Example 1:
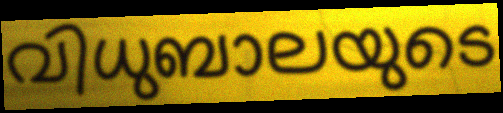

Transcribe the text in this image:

വിധുബാലയുടെ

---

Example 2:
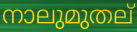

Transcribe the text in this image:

നാലുമുതല്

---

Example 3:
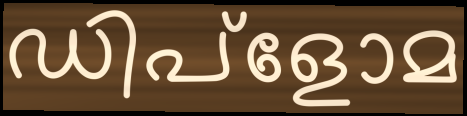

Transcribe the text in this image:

ഡിപ്ളോമ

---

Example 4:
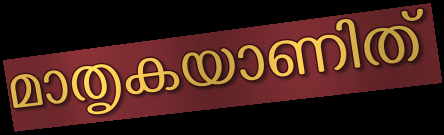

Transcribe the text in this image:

മാതൃകയാണിത്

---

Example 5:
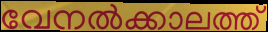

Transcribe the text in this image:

വേനൽക്കാലത്ത്